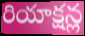
రియాక్షన్ల